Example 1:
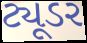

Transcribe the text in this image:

ટ્યૂડર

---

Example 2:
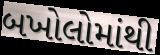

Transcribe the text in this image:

બખોલોમાંથી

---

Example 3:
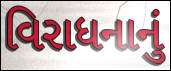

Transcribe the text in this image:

વિરાધનાનું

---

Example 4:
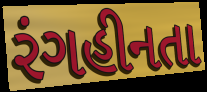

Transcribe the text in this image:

રંગહીનતા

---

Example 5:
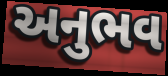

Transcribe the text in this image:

અનુભવ